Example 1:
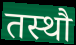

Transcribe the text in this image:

तस्थौ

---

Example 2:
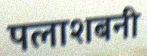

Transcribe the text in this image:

पलाशबनी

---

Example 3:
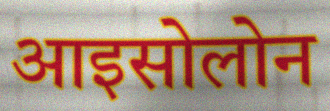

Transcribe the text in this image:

आइसोलोन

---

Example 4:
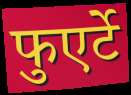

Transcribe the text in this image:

फुएर्टे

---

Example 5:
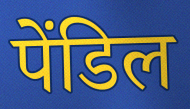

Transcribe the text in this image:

पेंडिल